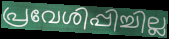
പ്രവേശിപ്പിച്ചില്ല